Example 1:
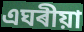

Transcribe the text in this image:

এঘৰীয়া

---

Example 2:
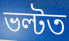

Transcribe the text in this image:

ভল্টত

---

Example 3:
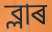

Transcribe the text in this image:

ব্লাৰ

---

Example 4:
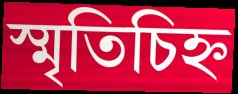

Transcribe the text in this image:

স্মৃতিচিহ্ন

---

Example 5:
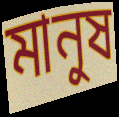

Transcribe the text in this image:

মানুষ